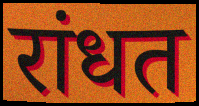
रांधत